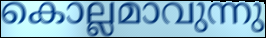
കൊല്ലമാവുന്നു